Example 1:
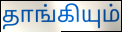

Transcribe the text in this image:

தாங்கியும்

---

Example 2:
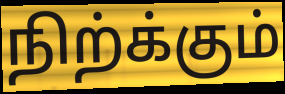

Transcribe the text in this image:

நிற்க்கும்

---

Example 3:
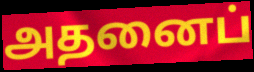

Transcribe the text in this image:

அதனைப்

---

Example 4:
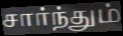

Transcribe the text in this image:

சார்ந்தும்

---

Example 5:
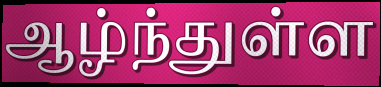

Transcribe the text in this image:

ஆழ்ந்துள்ள